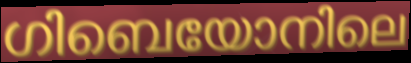
ഗിബെയോനിലെ